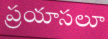
ప్రయాసలూ